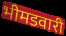
भीमडवारी